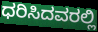
ಧರಿಸಿದವರಲ್ಲಿ